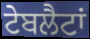
ਟੇਬਲੈਟਾਂ